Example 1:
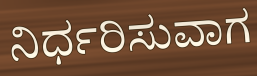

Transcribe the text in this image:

ನಿರ್ಧರಿಸುವಾಗ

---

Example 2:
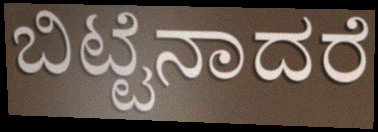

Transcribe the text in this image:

ಬಿಟ್ಟೆನಾದರೆ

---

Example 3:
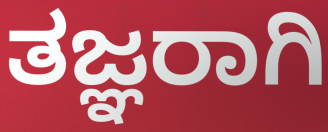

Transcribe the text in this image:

ತಜ್ಞರಾಗಿ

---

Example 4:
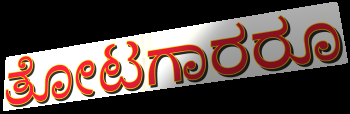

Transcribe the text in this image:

ತೋಟಗಾರರೂ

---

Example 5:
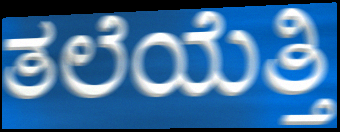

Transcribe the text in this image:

ತಲೆಯೆತ್ತಿ